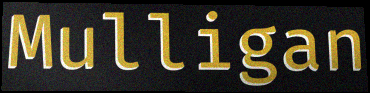
Mulligan